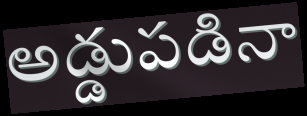
అడ్డుపడినా